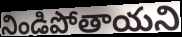
నిండిపోతాయని